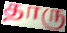
தாரு